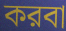
করবা